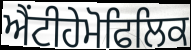
ਐਂਟੀਹੇਮੋਫਿਲਿਕ